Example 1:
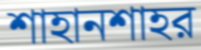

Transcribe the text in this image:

শাহানশাহর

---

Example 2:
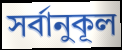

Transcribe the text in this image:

সর্বানুকূল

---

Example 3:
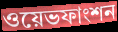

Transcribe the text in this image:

ওয়েভফাংশন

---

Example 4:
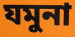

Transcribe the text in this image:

যমুনা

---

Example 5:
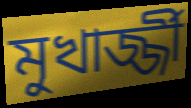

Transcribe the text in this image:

মুখার্জ্জী